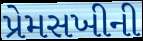
પ્રેમસખીની